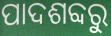
ପାଦଶବ୍ଦରୁ